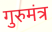
गुरुमंत्र